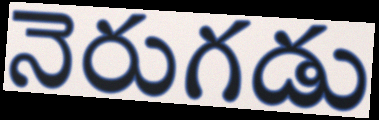
నెరుగడు